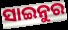
ସାଇନୁର